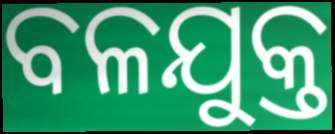
ବଳଯୁକ୍ତ